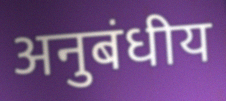
अनुबंधीय